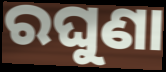
ରଘୁଣା